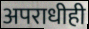
अपराधीही